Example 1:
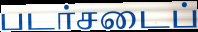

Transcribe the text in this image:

படர்சடைப்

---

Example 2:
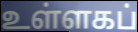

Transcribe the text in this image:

உள்ளகப்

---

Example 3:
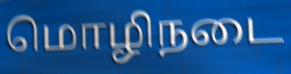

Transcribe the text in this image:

மொழிநடை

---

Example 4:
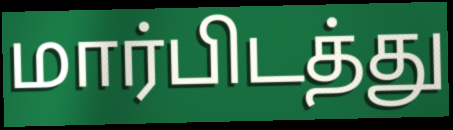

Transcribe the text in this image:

மார்பிடத்து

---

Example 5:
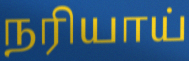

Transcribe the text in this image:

நரியாய்